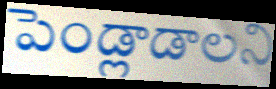
పెండ్లాడాలని